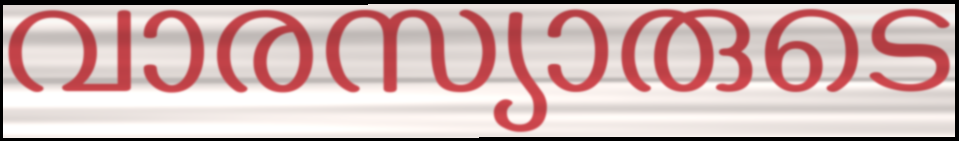
വാരസ്യാരുടെ